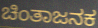
ಚಿಂತಾಜನಕ